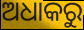
ଅଧାକରୁ